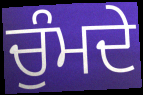
ਚੁੰਮਦੇ